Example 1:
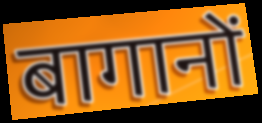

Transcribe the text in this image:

बागानों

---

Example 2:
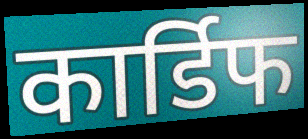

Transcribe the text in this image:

कार्डिफ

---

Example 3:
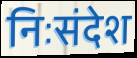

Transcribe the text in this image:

निःसंदेश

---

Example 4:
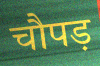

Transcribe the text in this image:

चौपड़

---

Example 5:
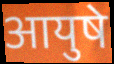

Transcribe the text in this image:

आयुषे